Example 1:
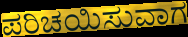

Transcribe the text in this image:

ಪರಿಚಯಿಸುವಾಗ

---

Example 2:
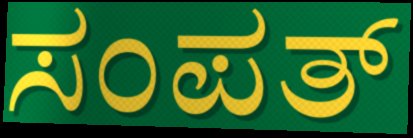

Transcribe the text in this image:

ಸಂಪತ್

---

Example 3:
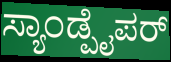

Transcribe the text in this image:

ಸ್ಯಾಂಡ್ಪೈಪರ್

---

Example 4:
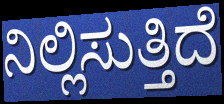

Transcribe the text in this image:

ನಿಲ್ಲಿಸುತ್ತಿದೆ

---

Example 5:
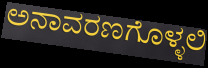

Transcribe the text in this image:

ಅನಾವರಣಗೊಳ್ಳಲಿ